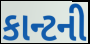
કાન્ટની